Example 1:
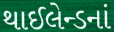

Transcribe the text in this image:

થાઈલેન્ડનાં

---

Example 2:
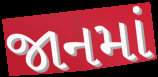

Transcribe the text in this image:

જાનમાં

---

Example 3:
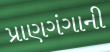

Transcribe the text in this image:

પ્રાણગંગાની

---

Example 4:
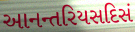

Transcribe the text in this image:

આનન્તરિયસદિસં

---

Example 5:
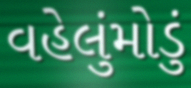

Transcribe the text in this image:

વહેલુંમોડું